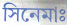
সিনেমাঃ